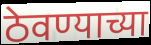
ठेवण्याच्या